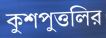
কুশপুত্তলির